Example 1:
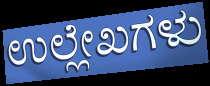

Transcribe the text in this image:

ಉಲ್ಲೇಖಗಳು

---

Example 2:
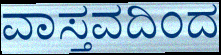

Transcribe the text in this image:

ವಾಸ್ತವದಿಂದ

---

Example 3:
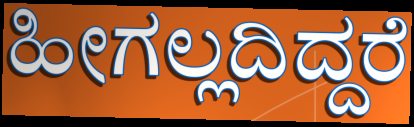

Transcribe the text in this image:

ಹೀಗಲ್ಲದಿದ್ದರೆ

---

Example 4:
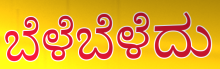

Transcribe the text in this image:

ಬೆಳೆಬೆಳೆದು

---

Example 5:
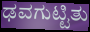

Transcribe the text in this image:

ಢವಗುಟ್ಟಿತು